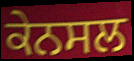
ਕੇਨਸਲ